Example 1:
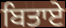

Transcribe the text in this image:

ਬਿਤਾਏ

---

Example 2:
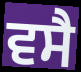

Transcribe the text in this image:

ਵਸੈ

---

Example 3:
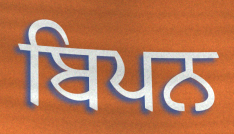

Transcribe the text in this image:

ਬਿਪਨ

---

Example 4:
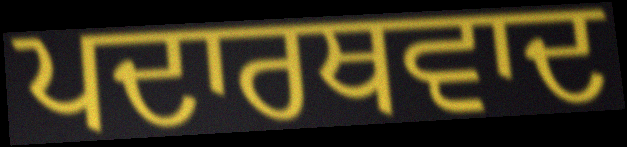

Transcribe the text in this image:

ਪਦਾਰਥਵਾਦ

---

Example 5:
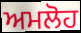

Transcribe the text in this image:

ਅਮਲੋਹ